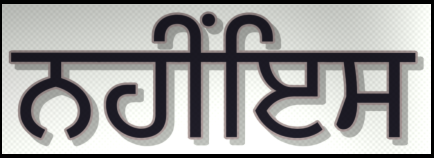
ਨਹੀਂਇਸ